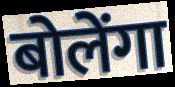
बोलेंगा